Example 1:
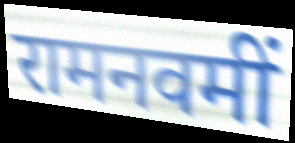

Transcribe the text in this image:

रामनवमीं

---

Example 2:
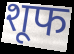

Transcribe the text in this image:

शूफ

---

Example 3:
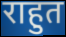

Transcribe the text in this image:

राहुत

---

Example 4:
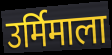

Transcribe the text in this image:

उर्मिमाला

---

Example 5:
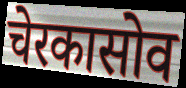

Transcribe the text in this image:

चेरकासोव